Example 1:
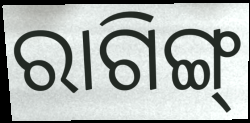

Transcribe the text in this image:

ରାଗିଙ୍ଗ୍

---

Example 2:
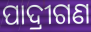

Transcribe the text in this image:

ପାଦ୍ରୀଗଣ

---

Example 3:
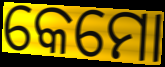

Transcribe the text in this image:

କେମୋ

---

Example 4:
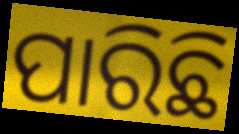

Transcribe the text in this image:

ପାରିଛି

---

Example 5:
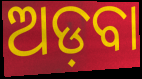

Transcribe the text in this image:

ଅଡ଼ବା